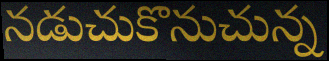
నడుచుకొనుచున్న